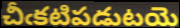
చీఁకటిపడుటయె